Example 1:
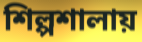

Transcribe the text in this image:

শিল্পশালায়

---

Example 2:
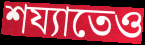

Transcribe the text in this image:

শয্যাতেও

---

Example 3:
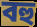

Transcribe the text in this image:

বহু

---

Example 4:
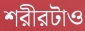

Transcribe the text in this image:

শরীরটাও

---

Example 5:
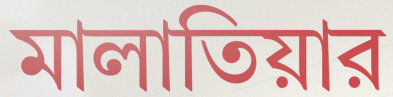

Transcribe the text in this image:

মালাতিয়ার